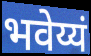
भवेय्यं